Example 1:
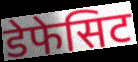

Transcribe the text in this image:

डेफेसिट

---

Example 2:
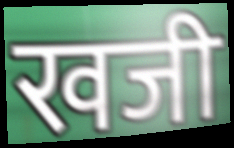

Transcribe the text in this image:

खजी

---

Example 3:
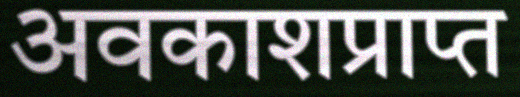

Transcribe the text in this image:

अवकाशप्राप्त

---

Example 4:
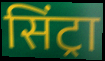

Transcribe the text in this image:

सिंट्रा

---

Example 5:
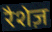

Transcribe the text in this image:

रैशेज़